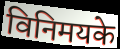
विनिमयके